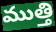
ముత్తి